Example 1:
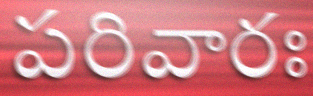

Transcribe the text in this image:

పరివారః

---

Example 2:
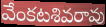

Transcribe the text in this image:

వేంకటశివరావు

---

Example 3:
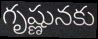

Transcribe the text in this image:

గృష్ణునకు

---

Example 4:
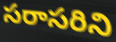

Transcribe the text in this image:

సరాసరిని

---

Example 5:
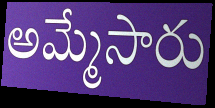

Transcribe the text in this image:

అమ్మేసారు